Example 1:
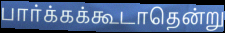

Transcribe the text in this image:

பார்க்கக்கூடாதென்று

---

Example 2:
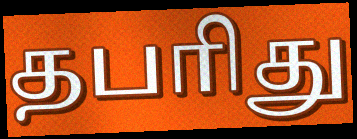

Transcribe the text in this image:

தபரிது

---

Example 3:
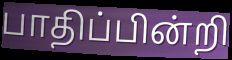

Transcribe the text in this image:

பாதிப்பின்றி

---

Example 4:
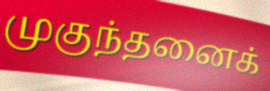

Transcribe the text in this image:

முகுந்தனைக்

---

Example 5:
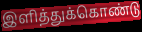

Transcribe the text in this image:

இளித்துக்கொண்டு